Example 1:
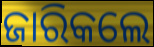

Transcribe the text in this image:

ଜାରିକଲେ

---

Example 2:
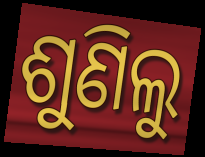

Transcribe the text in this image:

ଶୁଣିଲୁ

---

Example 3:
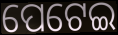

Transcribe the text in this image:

ପେଟେଇ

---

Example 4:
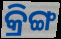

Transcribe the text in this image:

କ୍ରିଙ୍ଗ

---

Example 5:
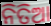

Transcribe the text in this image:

ନିତିଆ